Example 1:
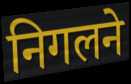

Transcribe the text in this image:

निगलने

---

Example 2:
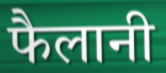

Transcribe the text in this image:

फैलानी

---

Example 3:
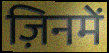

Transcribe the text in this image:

ज़िनमें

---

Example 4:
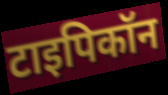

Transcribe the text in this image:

टाइपिकॉन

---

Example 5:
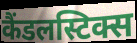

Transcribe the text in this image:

कैंडलस्टिक्स